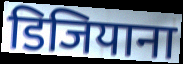
डिजियाना